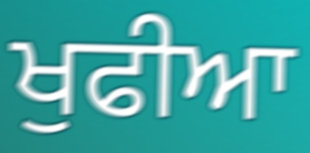
ਖੁਫੀਆ